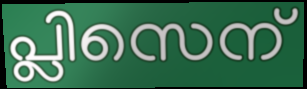
പ്ലിസെന്